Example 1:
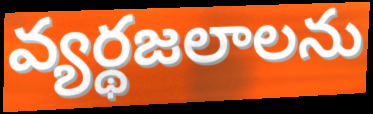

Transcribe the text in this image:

వ్యర్థజలాలను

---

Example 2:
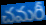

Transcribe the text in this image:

చమరీ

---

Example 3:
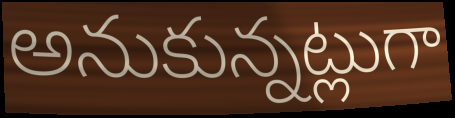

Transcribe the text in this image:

అనుకున్నట్లుగా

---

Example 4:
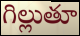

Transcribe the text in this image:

గిల్లుతూ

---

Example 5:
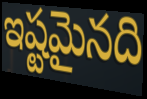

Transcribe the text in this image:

ఇష్టమైనది